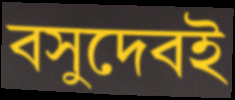
বসুদেবই